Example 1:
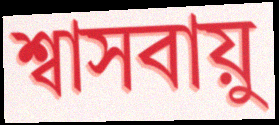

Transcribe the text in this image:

শ্বাসবায়ু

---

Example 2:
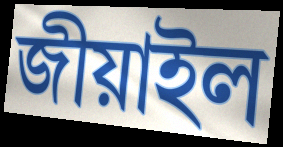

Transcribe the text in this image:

জীয়াইল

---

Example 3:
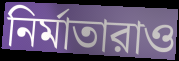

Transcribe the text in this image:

নির্মাতারাও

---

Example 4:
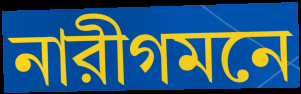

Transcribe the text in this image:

নারীগমনে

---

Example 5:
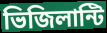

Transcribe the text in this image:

ভিজিলান্টি